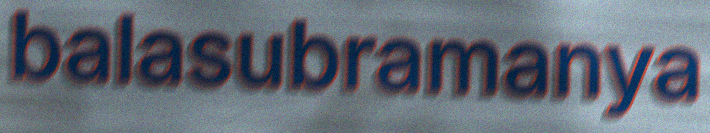
balasubramanya